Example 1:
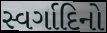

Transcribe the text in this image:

સ્વર્ગાદિનો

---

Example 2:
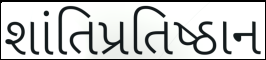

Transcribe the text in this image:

શાંતિપ્રતિષ્ઠાન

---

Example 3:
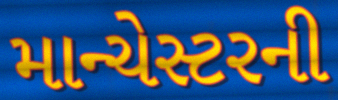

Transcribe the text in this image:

માન્ચેસ્ટરની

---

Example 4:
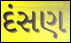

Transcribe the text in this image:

દંસણ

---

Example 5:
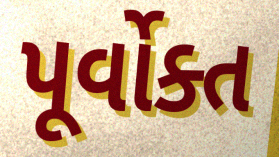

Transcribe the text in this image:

પૂર્વોક્ત